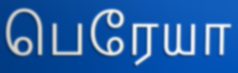
பெரேயா